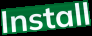
Install